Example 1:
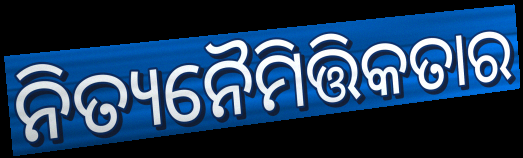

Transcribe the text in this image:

ନିତ୍ୟନୈମିତ୍ତିକତାର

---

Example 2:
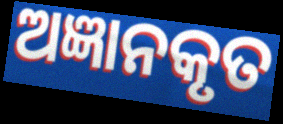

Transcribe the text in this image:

ଅଜ୍ଞାନକୃତ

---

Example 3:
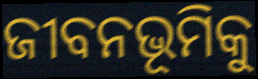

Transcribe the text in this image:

ଜୀବନଭୂମିକୁ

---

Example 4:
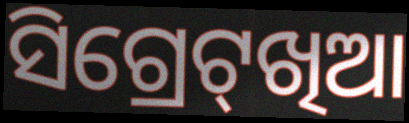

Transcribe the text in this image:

ସିଗ୍ରେଟ୍‌ଖିଆ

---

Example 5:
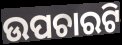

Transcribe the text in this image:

ଉପଚାରଟି